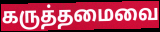
கருத்தமைவை